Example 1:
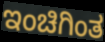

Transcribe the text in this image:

ಇಂಚಿಗಿಂತ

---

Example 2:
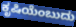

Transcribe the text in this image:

ಕೃಷಿಯೆಂಬುದು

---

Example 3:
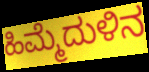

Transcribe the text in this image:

ಹಿಮ್ಮೆದುಳಿನ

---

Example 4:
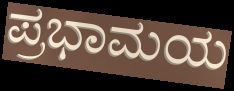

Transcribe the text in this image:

ಪ್ರಭಾಮಯ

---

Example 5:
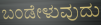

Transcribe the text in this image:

ಬಂಡೇಳುವುದು